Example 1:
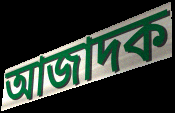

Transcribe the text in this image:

আজাদক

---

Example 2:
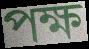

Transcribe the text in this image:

পক্ষ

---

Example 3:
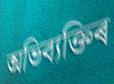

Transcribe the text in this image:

অভিব্যক্তিৰ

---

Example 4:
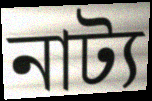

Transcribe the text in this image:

নাট্য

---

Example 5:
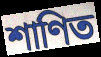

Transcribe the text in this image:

শাণিত